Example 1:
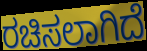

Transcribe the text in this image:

ರಚಿಸಲಾಗಿದೆ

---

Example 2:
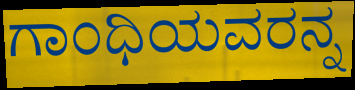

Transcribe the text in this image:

ಗಾಂಧಿಯವರನ್ನ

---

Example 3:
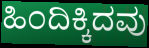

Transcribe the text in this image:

ಹಿಂದಿಕ್ಕಿದವು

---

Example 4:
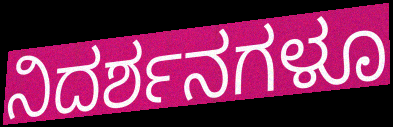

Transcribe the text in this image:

ನಿದರ್ಶನಗಳೂ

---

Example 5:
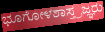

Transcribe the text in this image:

ಭೂಗೋಳಶಾಸ್ತ್ರಜ್ಞರು